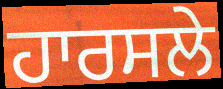
ਹਾਰਸਲੇ